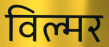
विल्मर